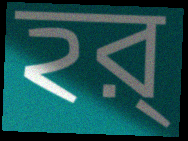
হর্